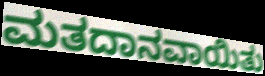
ಮತದಾನವಾಯಿತು